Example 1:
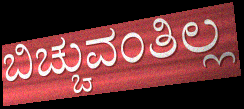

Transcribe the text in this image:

ಬಿಚ್ಚುವಂತಿಲ್ಲ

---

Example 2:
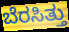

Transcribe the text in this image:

ಬೆರಸಿತ್ತು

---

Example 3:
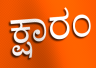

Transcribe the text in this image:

ಕ್ಷಾರಂ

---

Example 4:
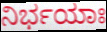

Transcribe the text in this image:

ನಿರ್ಭಯಾಃ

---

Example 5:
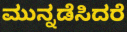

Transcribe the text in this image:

ಮುನ್ನಡೆಸಿದರೆ